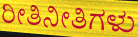
ರೀತಿನೀತಿಗಳು